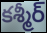
కశ్మీర్